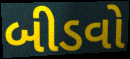
બીડવો